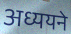
अध्ययने